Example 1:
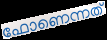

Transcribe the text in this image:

ഫോണെന്നത്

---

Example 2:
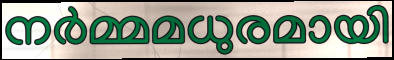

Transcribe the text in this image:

നർമ്മമധുരമായി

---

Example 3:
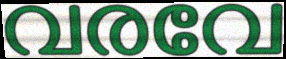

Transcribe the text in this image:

വരവേ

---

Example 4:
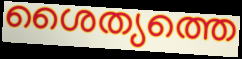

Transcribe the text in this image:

ശൈത്യത്തെ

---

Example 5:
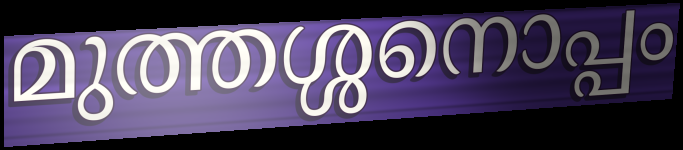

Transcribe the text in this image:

മുത്തശ്ശനൊപ്പം